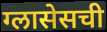
ग्लासेसची